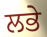
ਲਭੇ